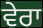
ਵੇਰਾ